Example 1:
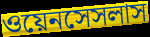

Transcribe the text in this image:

ওয়েনসেসলাস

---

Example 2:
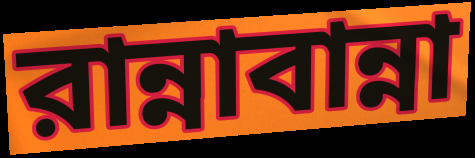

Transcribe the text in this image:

রান্নাবান্না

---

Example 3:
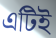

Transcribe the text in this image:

এটিই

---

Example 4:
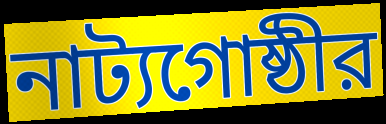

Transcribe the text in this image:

নাট্যগোষ্ঠীর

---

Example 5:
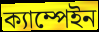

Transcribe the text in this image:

ক্যাম্পেইন